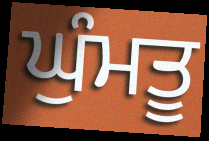
ਘੁੰਮਤੂ